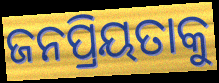
ଜନପ୍ରିୟତାକୁ